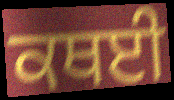
ਕਥਈ